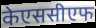
केएससीएफ